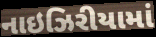
નાઇઝિરીયામાં